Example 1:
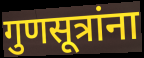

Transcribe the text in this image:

गुणसूत्रांना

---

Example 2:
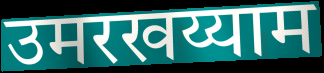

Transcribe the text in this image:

उमरखय्याम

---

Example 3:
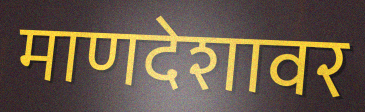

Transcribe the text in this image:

माणदेशावर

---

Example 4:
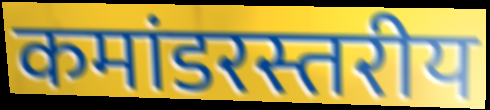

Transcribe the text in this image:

कमांडरस्तरीय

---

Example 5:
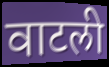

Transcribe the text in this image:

वाटली